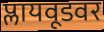
प्लायवूडवर